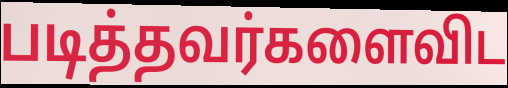
படித்தவர்களைவிட